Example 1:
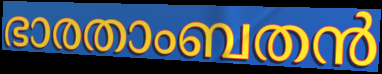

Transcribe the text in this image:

ഭാരതാംബതൻ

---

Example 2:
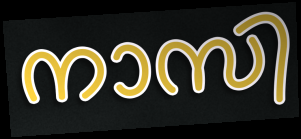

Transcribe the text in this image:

നാസി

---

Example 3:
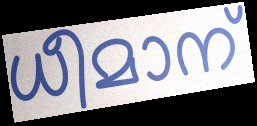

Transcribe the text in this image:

ധീമാന്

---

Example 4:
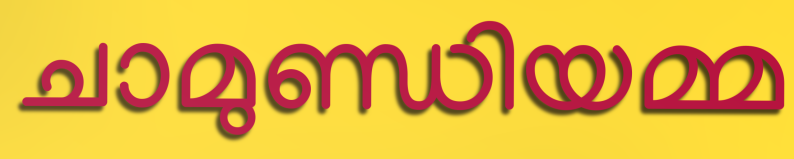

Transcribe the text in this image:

ചാമുണ്ഡിയമ്മ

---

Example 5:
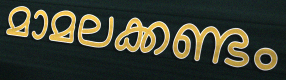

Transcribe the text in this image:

മാമലക്കണ്ടം